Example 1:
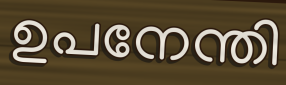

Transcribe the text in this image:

ഉപനേന്തി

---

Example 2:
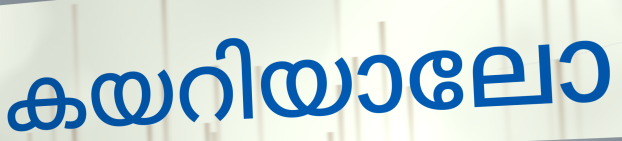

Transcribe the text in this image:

കയറിയാലോ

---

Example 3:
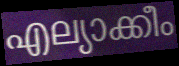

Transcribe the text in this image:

എല്യാക്കീം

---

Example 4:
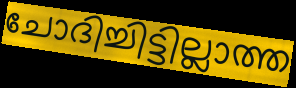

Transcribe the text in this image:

ചോദിച്ചിട്ടില്ലാത്ത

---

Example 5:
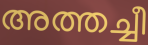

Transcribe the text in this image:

അത്തച്ചീ